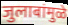
जुलाबांमुळे